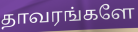
தாவரங்களே